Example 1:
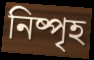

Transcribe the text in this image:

নিষ্পৃহ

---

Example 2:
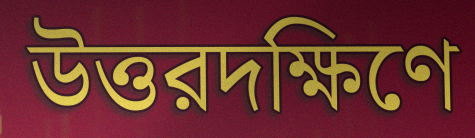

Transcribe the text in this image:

উত্তরদক্ষিণে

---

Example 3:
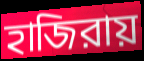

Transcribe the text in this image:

হাজিরায়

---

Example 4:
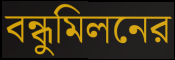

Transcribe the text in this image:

বন্ধুমিলনের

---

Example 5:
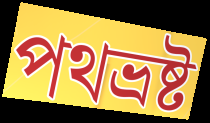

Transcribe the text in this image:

পথভ্রষ্ট